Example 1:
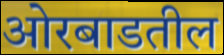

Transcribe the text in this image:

ओरबाडतील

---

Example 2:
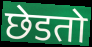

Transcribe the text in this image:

छेडतो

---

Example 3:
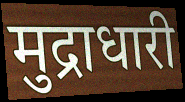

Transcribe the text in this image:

मुद्राधारी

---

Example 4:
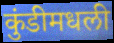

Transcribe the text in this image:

कुंडीमधली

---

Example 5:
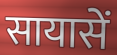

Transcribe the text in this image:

सायासें